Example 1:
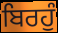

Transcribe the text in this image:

ਬਿਰਹੁੰ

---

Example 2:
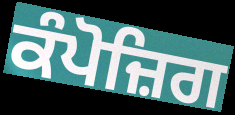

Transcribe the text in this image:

ਕੰਪੋਜ਼ਿਗ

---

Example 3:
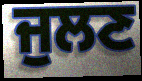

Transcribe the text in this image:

ਜੁਲਣ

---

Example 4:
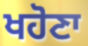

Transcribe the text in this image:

ਖਹੋਣਾ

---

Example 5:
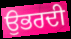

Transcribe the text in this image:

ਉਭਰਦੀ